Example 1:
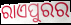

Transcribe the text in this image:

ରାଏପୁରର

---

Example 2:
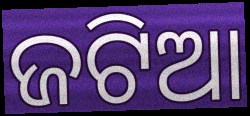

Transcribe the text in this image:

ଜଟିଆ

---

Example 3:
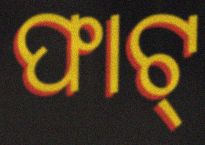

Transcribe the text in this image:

ଫାଟ୍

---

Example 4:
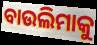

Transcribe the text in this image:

ବାଉଲିମାକୁ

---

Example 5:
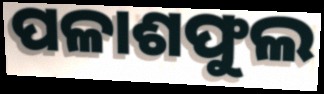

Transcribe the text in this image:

ପଳାଶଫୁଲ